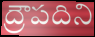
ద్రౌపదిని